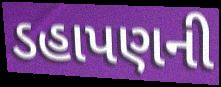
ડહાપણની